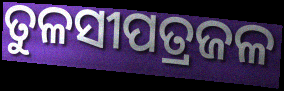
ତୁଳସୀପତ୍ରଜଳ